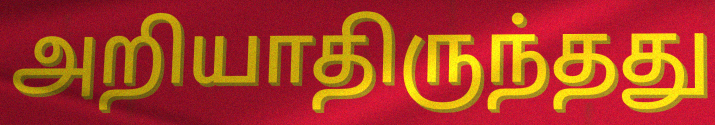
அறியாதிருந்தது